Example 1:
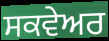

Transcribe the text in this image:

ਸਕਵੇਅਰ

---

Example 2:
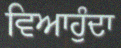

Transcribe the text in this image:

ਵਿਆਹੁੰਦਾ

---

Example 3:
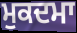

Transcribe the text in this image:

ਮੁਕਦਮਾ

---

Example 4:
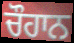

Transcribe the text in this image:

ਚੌਹਾਨ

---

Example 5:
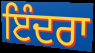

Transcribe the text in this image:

ਇੰਦਰਾ